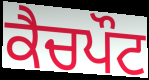
ਕੈਚਪੌਟ